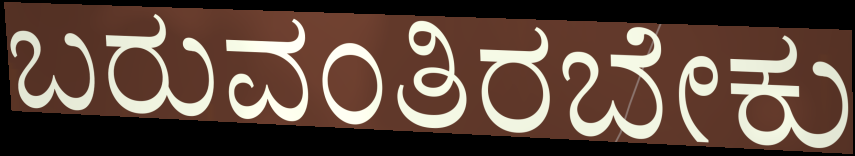
ಬರುವಂತಿರಬೇಕು